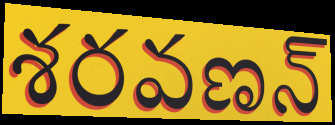
శరవణన్